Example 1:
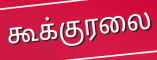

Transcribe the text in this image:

கூக்குரலை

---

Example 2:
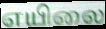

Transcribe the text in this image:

எயிலை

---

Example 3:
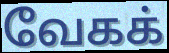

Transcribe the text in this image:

வேகக்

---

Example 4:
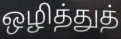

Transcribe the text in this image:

ஒழித்துத்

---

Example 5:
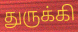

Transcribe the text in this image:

துருக்கி